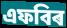
এফবিৰ